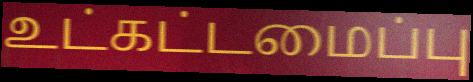
உட்கட்டமைப்பு